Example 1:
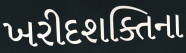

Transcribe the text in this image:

ખરીદશક્તિના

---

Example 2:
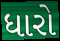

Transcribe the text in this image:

ધારો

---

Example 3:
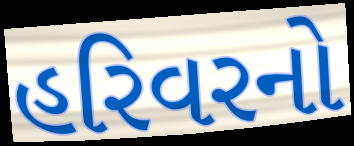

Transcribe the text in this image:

હરિવરનો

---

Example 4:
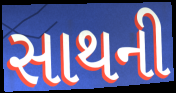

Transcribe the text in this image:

સાથની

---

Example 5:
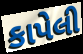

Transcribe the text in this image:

કાપેલી